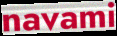
navami